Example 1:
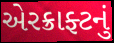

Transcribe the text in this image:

એરક્રાફ્ટનું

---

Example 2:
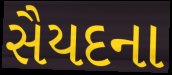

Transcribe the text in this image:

સૈયદના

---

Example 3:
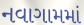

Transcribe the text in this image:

નવાગામમાં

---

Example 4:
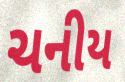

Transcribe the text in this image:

ચનીય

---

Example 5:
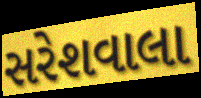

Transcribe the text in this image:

સરેશવાલા